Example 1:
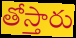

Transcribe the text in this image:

తోస్తారు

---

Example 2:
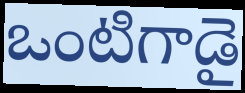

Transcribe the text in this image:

ఒంటిగాడై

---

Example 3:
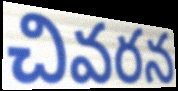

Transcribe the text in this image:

చివరన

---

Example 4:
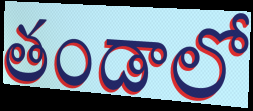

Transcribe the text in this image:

తండాలో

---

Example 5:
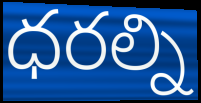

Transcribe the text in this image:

ధరల్ని